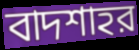
বাদশাহর